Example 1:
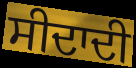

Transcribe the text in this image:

ਸੀਦਾਦੀ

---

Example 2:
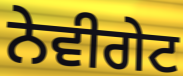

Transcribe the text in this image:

ਨੇਵੀਗੇਟ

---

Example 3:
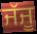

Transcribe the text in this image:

ਜੱਜੂ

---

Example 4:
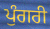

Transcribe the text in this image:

ਪੁੰਗਰੀ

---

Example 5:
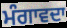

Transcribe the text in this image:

ਮੰਗਾਵਦਾ